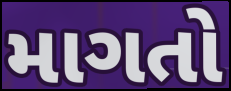
માગતો